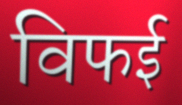
विफई